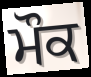
ਮੌਕ